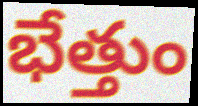
భేత్తుం